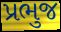
પ્રભુજ